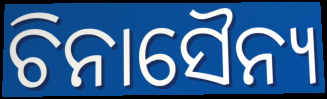
ଚିନାସୈନ୍ୟ